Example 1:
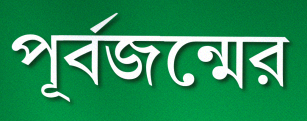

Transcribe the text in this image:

পূর্বজন্মের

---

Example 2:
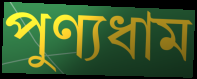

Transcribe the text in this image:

পুণ্যধাম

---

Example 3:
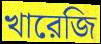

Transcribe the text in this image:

খারেজি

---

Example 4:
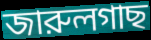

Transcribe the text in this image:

জারুলগাছ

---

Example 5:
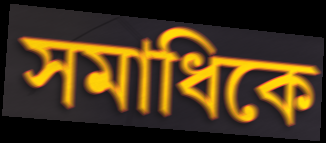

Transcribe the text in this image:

সমাধিকে